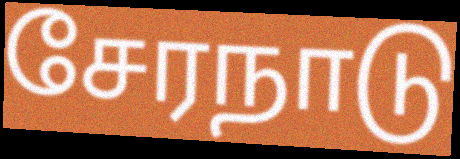
சேரநாடு